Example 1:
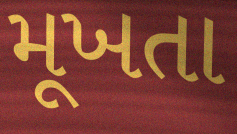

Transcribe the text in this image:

મૂખતા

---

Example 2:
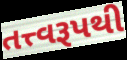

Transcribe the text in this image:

તત્ત્વરૂપથી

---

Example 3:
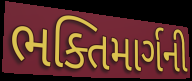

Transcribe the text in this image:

ભક્તિમાર્ગની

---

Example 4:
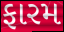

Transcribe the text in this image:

ફારમ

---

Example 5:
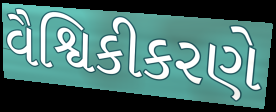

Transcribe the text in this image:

વૈશ્વિકીકરણે